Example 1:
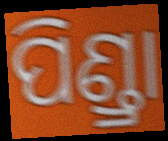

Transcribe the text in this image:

ପିଣ୍ଡ୍ରା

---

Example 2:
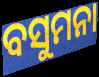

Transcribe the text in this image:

ବସୁମନା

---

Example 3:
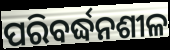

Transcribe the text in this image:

ପରିବର୍ଦ୍ଧନଶୀଳ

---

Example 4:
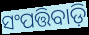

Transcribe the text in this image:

ସଂପତ୍ତିବାଡ଼ି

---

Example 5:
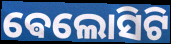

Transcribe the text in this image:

ଵେଲୋସିଟି